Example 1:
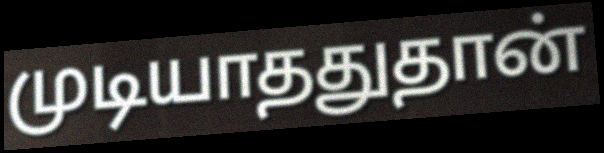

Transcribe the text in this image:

முடியாததுதான்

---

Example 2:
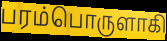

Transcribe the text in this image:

பரம்பொருளாகி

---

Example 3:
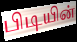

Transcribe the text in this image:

பிடியின்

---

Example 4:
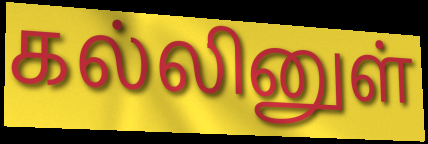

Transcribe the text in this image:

கல்லினுள்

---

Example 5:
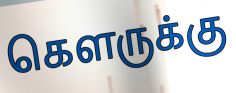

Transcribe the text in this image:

கௌருக்கு